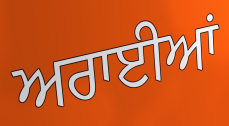
ਅਰਾਈਆਂ